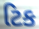
ટિક